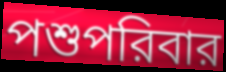
পশুপরিবার